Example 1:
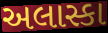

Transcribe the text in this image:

અલાસ્કા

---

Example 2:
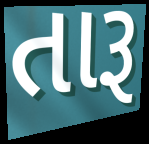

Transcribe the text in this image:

તારૂ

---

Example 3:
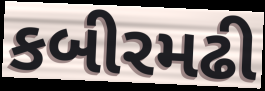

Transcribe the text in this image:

કબીરમઢી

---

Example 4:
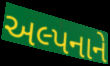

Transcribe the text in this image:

અલ્પનાને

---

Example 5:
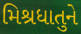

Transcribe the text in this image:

મિશ્રધાતુને